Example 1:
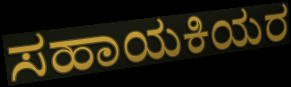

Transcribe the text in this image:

ಸಹಾಯಕಿಯರ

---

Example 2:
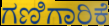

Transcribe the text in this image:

ಗಣಿಗಾರಿಕೆ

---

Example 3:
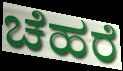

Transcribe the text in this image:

ಚೆಹರೆ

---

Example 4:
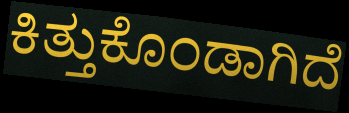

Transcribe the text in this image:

ಕಿತ್ತುಕೊಂಡಾಗಿದೆ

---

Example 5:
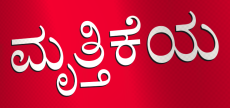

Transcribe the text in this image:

ಮೃತ್ತಿಕೆಯ